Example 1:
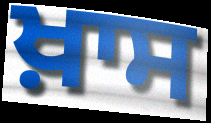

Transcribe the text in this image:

ਖ਼ਾਸ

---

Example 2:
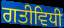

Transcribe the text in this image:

ਗਤੀਵਿਧੀ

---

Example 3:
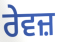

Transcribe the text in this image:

ਰੇਵਜ਼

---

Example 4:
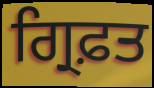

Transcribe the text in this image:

ਗ੍ਰਿਫ਼ਤ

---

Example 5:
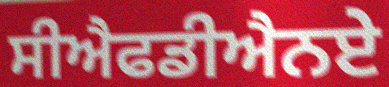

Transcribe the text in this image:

ਸੀਐਫਡੀਐਨਏ